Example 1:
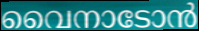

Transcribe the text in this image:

വൈനാടോൻ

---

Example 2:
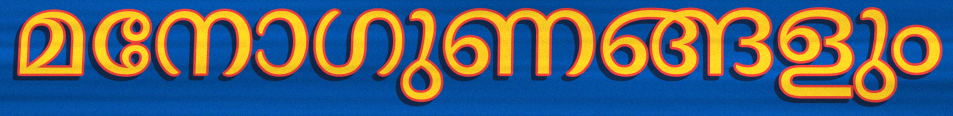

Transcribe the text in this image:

മനോഗുണങ്ങളും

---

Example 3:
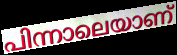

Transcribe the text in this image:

പിന്നാലെയാണ്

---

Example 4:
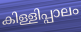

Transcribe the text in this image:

കിള്ളിപ്പാലം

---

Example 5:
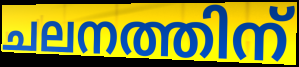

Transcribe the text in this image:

ചലനത്തിന്